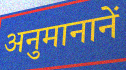
अनुमानानें